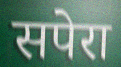
सपेरा